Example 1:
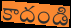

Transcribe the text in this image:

కాదండి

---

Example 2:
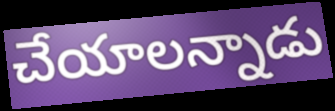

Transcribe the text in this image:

చేయాలన్నాడు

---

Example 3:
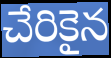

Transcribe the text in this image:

చేరికైన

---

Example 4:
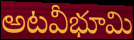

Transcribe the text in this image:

అటవీభూమి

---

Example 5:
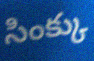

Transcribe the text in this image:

సింక్కు